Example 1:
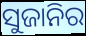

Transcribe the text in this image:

ସୁଜାନିର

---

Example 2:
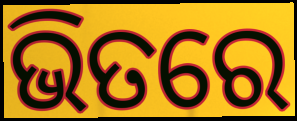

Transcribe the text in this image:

ଭିତରେ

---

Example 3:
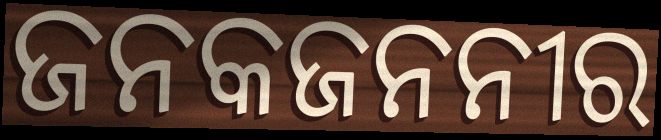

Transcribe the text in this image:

ଜନକଜନନୀର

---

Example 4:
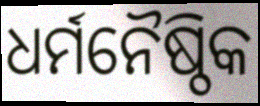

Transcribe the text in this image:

ଧର୍ମନୈଷ୍ଠିକ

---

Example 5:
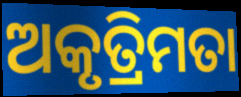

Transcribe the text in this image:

ଅକୃତ୍ରିମତା